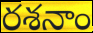
రశనాం